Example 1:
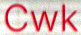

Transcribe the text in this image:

Cwk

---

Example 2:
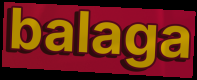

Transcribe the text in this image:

balaga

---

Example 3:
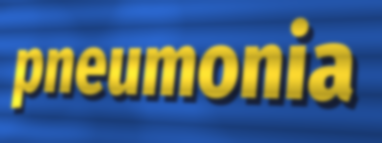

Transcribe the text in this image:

pneumonia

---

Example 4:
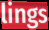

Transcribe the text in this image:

lings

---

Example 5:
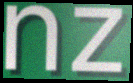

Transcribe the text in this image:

nz